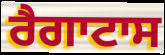
ਰੈਗਾਟਾਸ